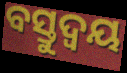
ବସ୍ତୁଦ୍ୱୟ